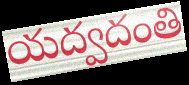
యద్వదంతి